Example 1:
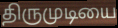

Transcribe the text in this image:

திருமுடியை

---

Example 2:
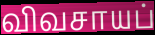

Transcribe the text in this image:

விவசாயப்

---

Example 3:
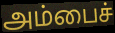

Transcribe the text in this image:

அம்பைச்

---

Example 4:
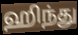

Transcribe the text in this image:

ஹிந்து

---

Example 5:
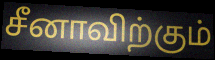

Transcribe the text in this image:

சீனாவிற்கும்